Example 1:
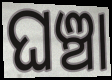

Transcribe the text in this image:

ଘଞ୍ଚା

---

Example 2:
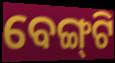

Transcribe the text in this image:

ବେଙ୍ଗ୍‌ଟି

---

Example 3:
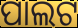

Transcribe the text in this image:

ପାଲଟ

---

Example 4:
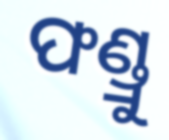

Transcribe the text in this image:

ଫଣ୍ଡ୍ରୁ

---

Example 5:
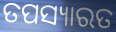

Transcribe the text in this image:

ତପସ୍ୟାରତ